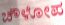
ಚೌಳೋಪ